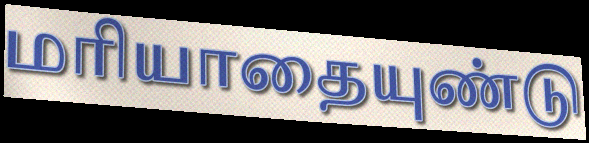
மரியாதையுண்டு